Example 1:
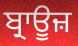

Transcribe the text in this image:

ਬ੍ਰਾਊਜ਼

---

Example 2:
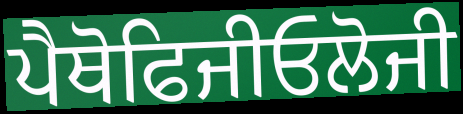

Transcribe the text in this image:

ਪੈਥੋਫਿਜੀਓਲੋਜੀ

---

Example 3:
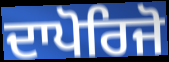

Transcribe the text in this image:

ਦਾਪੋਰਿਜੋ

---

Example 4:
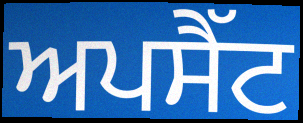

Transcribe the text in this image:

ਅਪਸੈੱਟ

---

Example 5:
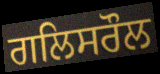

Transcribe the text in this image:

ਗਲਿਸਰੌਲ